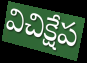
విచిక్షేప